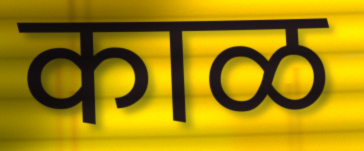
काळ